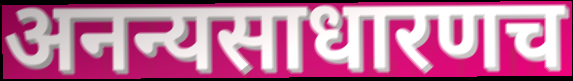
अनन्यसाधारणच